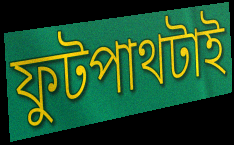
ফুটপাথটাই